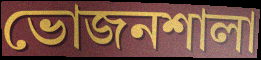
ভোজনশালা